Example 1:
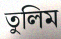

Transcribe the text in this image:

তুলিম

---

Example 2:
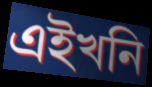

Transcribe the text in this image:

এইখনি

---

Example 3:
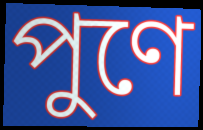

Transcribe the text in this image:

পুণে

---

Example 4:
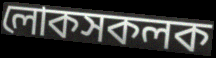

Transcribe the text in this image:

লোকসকলক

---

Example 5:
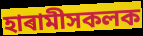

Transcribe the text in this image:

হাৰামীসকলক